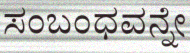
ಸಂಬಂಧವನ್ನೇ